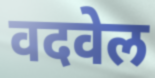
वदवेल